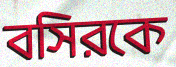
বসিরকে